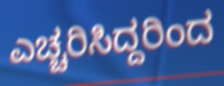
ಎಚ್ಚರಿಸಿದ್ದರಿಂದ